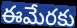
ఈమేరకు